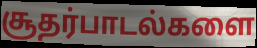
சூதர்பாடல்களை